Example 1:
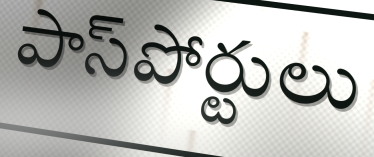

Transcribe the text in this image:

పాస్‌పోర్టులు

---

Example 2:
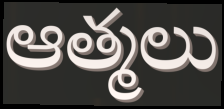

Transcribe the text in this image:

ఆత్మలు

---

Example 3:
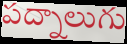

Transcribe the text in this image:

పద్నాలుగు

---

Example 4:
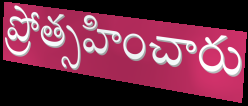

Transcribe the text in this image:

ప్రోత్సహించారు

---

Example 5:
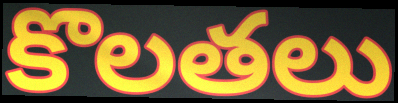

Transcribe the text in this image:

కొలతలు